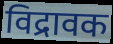
विद्रावक